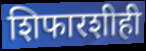
शिफारशीही